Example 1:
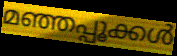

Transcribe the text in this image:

മഞ്ഞപ്പൂക്കൾ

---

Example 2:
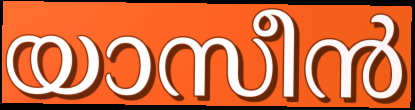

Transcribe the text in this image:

യാസീൻ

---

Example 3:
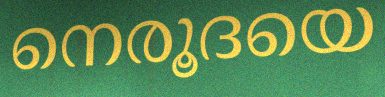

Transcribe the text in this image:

നെരൂദയെ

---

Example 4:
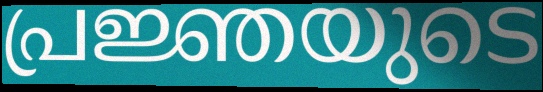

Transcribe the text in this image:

പ്രജ്ഞയുടെ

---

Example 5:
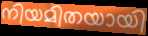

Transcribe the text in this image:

നിയമിതയായി